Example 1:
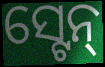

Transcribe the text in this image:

ସ୍ଟେନ୍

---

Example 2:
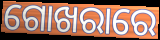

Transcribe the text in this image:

ଗୋଖରାରେ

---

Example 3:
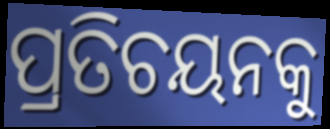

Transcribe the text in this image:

ପ୍ରତିଚୟନକୁ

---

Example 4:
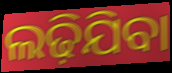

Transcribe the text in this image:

ଲଢ଼ିଯିବା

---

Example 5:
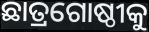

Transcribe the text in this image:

ଛାତ୍ରଗୋଷ୍ଠୀକୁ